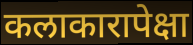
कलाकारापेक्षा